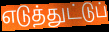
எடுத்துட்டுப்